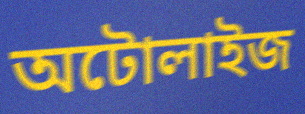
অটোলাইজ